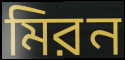
মিরন